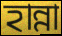
হান্না